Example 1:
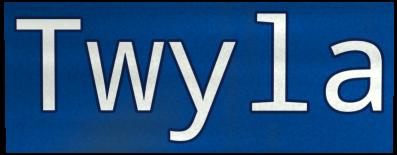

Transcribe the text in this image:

Twyla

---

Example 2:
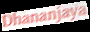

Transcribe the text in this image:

Dhananjaya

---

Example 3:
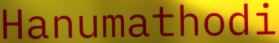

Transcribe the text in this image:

Hanumathodi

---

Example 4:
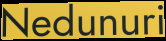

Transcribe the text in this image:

Nedunuri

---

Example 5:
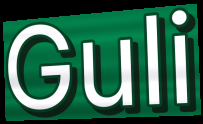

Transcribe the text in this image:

Guli